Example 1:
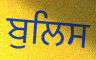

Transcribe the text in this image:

ਬੁਲਿਸ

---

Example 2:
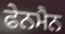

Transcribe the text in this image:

ਫੇਨਮੈਨ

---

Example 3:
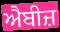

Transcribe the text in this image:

ਐਬੀਜ਼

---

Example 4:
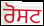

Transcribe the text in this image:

ਰੋਸਟ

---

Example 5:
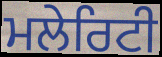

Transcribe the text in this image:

ਮਲੇਰਿਟੀ